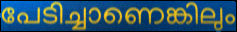
പേടിച്ചാണെങ്കിലും